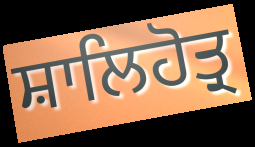
ਸ਼ਾਲਿਹੋਤ੍ਰ